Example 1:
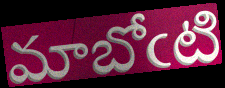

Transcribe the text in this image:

మాబోఁటి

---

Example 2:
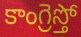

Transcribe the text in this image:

కాంగ్రెస్తో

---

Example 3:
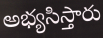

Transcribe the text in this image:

అభ్యసిస్తారు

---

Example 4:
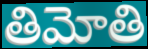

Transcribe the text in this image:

తిమోతి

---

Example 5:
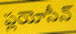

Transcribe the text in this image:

ప్లయోసీన్